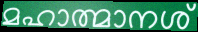
മഹാത്മാനശ്